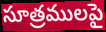
సూత్రములపై